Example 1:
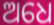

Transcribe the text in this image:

ଅଧେ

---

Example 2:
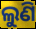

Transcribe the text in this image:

ଲୁଣି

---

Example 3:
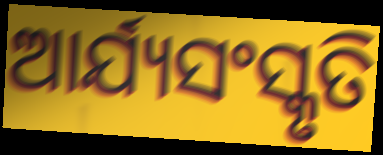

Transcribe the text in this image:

ଆର୍ଯ୍ୟସଂସ୍କୃତି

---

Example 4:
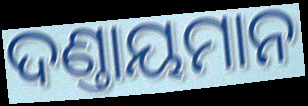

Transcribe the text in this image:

ଦଣ୍ତାୟମାନ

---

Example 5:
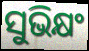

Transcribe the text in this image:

ସୁଭିକ୍ଷଂ